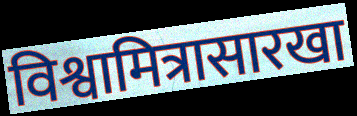
विश्वामित्रासारखा